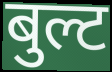
बुल्ट